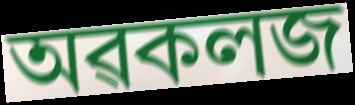
অৱকলজ